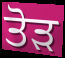
ਤੋੜ